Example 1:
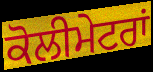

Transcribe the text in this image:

ਕੋਲੀਮੇਟਰਾਂ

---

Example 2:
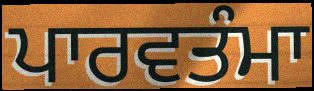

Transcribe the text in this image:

ਪਾਰਵਤੰਮਾ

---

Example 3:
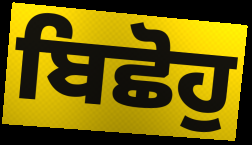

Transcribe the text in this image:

ਬਿਛੋਹੁ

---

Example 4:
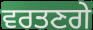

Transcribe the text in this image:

ਵਰਤਣਗੇ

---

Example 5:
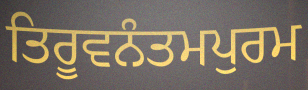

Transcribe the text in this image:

ਤਿਰੂਵਨੰਤਮਪੁਰਮ